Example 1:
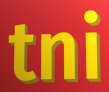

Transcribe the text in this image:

tni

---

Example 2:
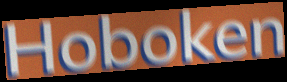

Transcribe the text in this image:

Hoboken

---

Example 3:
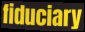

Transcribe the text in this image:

fiduciary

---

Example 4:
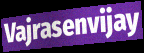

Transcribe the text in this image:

Vajrasenvijay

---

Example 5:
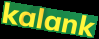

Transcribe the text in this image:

kalank